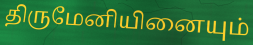
திருமேனியினையும்